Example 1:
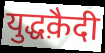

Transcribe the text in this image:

युद्धक़ैदी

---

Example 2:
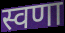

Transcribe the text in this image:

स्वणा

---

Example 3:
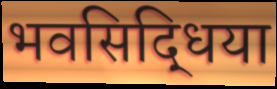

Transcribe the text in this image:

भवसिद्धिया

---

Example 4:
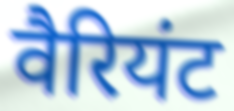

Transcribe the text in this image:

वैरियंट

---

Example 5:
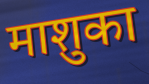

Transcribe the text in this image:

माशुका